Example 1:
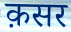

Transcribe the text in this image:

क़सर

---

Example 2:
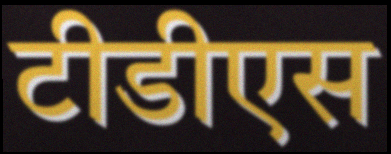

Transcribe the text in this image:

टीडीएस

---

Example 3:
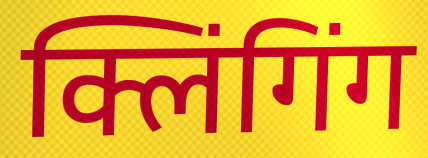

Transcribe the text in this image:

क्लिंगिंग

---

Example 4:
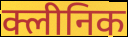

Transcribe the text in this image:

क्लीनिक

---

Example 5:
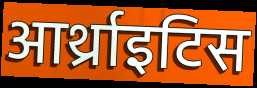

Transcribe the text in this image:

आर्थ्राइटिस